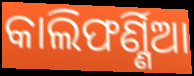
କାଲିଫର୍ଣ୍ଣିଆ